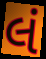
લં